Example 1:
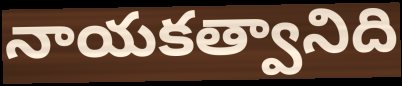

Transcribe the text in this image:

నాయకత్వానిది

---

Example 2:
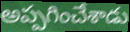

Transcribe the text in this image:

అప్పగించేశాడు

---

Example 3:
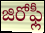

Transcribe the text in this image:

జిరోఫ్లీ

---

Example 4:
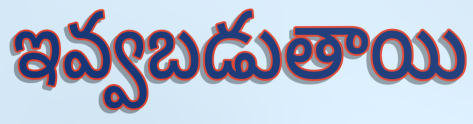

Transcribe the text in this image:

ఇవ్వబడుతాయి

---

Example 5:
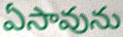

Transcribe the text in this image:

ఏసావును